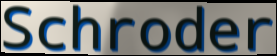
Schroder